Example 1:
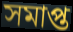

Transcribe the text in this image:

সমাপ্ত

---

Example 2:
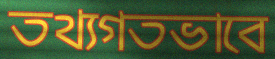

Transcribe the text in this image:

তথ্যগতভাবে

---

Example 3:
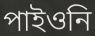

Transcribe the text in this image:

পাইওনি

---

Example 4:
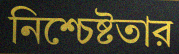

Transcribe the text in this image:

নিশ্চেষ্টতার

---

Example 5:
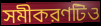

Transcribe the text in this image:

সমীকরণটিও